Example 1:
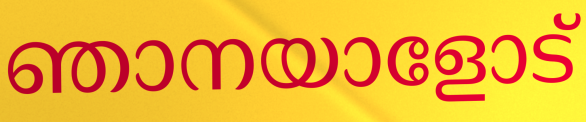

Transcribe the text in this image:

ഞാനയാളോട്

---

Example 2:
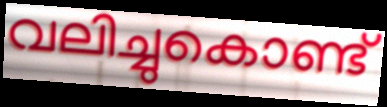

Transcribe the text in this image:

വലിച്ചുകൊണ്ട്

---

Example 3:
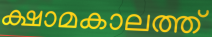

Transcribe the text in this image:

ക്ഷാമകാലത്ത്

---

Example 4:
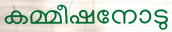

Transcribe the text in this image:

കമ്മീഷനോടു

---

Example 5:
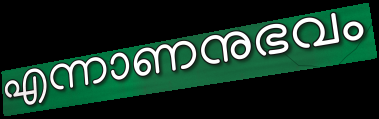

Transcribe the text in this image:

എന്നാണനുഭവം